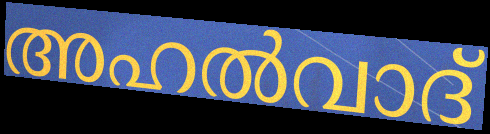
അഹൽവാദ്